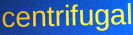
centrifugal